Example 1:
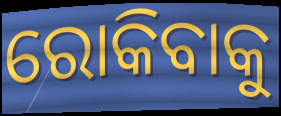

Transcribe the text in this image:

ରୋକିବାକୁ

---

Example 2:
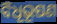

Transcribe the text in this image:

ବିଧୂଭୂଷଣ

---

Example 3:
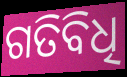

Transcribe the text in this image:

ଗତିବିଧି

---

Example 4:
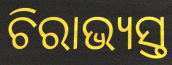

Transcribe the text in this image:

ଚିରାଭ୍ୟସ୍ତ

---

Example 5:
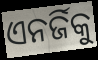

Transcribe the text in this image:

ଏନର୍ଜିକୁ